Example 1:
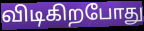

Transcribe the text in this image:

விடிகிறபோது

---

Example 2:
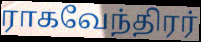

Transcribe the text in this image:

ராகவேந்திரர்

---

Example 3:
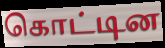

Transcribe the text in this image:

கொட்டின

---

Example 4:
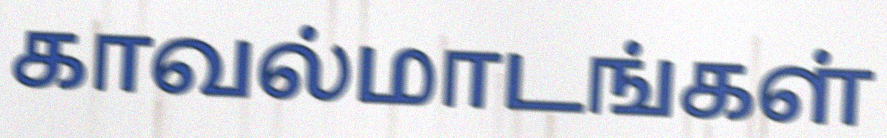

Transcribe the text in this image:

காவல்மாடங்கள்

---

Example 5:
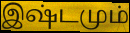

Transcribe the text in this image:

இஷ்டமும்